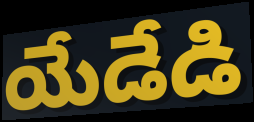
యేడేడి